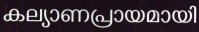
കല്യാണപ്രായമായി